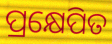
ପ୍ରକ୍ଷେପିତ